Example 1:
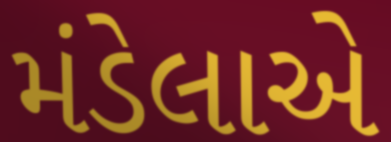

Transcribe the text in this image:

મંડેલાએ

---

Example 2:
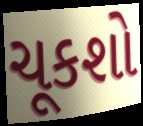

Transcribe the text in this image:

ચૂકશો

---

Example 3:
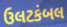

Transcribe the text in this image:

ઉલટકંબલ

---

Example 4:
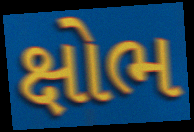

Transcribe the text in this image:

ક્ષોભ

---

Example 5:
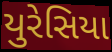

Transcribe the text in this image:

યુરેસિયા